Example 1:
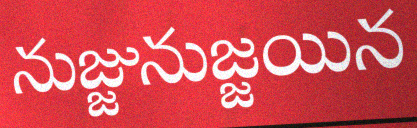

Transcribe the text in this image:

నుజ్జునుజ్జయిన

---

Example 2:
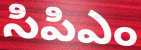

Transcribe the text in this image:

సిపిఎం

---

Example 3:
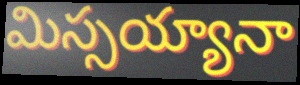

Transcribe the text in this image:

మిస్సయ్యానా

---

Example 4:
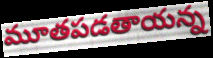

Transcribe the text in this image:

మూతపడతాయన్న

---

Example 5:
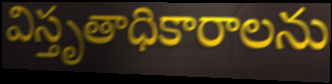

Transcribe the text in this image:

విస్తృతాధికారాలను